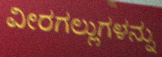
ವೀರಗಲ್ಲುಗಳನ್ನು